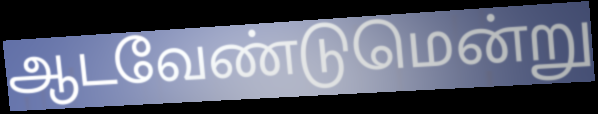
ஆடவேண்டுமென்று